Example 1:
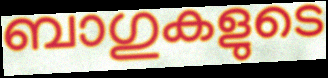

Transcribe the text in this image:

ബാഗുകളുടെ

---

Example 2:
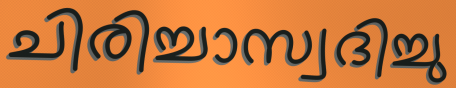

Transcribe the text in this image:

ചിരിച്ചാസ്വദിച്ചു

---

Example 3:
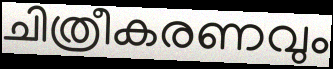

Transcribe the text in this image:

ചിത്രീകരണവും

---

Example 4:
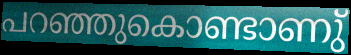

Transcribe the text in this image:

പറഞ്ഞുകൊണ്ടാണു്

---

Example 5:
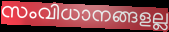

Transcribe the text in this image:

സംവിധാനങ്ങളല്ല